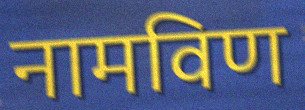
नामविण